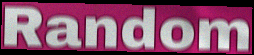
Random